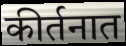
कीर्तनात